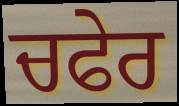
ਚਫੇਰ